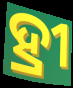
ହ୍ରୀ